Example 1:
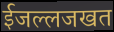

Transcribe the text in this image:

ईजल्लजखत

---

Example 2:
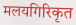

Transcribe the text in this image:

मलयगिरिकृत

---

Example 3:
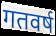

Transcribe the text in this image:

गतवर्ष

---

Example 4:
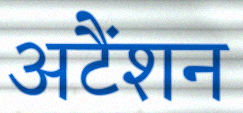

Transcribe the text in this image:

अटैंशन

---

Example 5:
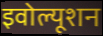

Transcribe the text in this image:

इवोल्यूशन